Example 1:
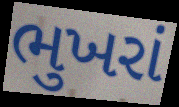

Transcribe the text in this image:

ભુખરાં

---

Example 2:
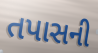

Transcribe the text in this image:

તપાસની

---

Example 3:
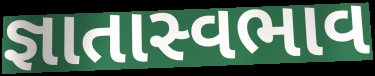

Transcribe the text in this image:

જ્ઞાતાસ્વભાવ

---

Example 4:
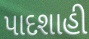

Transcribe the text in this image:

પાદશાહી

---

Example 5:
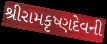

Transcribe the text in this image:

શ્રીરામકૃષ્ણદેવની